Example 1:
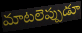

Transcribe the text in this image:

మాటలెప్పుడూ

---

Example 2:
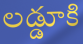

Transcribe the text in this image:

లడ్డూకి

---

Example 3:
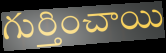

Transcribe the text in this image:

గుర్తించాయి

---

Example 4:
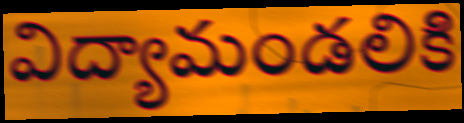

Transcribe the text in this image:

విద్యామండలికి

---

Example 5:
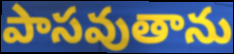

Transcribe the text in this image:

పాసవుతాను